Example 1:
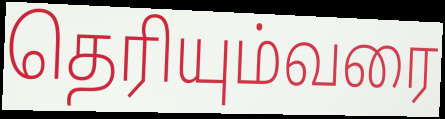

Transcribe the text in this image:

தெரியும்வரை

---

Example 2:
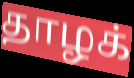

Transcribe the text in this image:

தாழக்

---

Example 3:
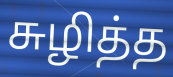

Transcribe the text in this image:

சுழித்த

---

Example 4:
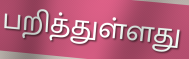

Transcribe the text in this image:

பறித்துள்ளது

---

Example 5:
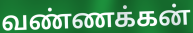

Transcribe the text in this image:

வண்ணக்கன்